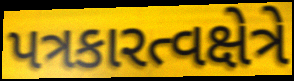
પત્રકારત્વક્ષેત્રે